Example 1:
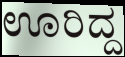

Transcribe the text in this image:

ಊರಿದ್ದ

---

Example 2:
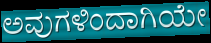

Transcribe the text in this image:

ಅವುಗಳಿಂದಾಗಿಯೇ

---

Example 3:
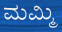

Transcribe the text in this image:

ಮಮ್ಮಿ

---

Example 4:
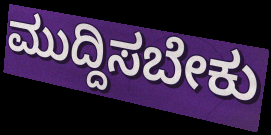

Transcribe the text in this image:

ಮುದ್ದಿಸಬೇಕು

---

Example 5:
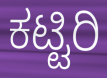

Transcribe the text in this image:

ಕಟ್ಟಿರಿ